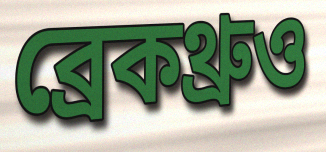
ব্রেকথ্রুও